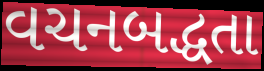
વચનબદ્ધતા